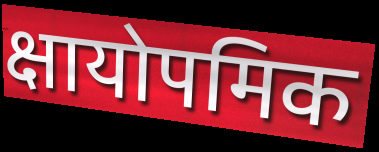
क्षायोपमिक